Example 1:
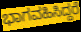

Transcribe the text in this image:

ಭಾಗವಹಿಸಿದ್ದರೆ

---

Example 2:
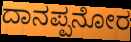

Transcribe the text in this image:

ದಾನಪ್ಪನೋರ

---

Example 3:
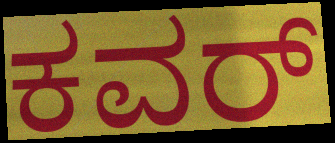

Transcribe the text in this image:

ಕವರ್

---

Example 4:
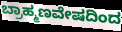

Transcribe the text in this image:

ಬ್ರಾಹ್ಮಣವೇಷದಿಂದ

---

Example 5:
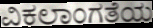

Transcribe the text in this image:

ವಿಕಲಾಂಗತೆಯ